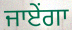
ਜਾਏਂਗਾ